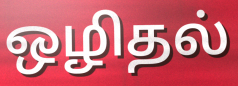
ஒழிதல்